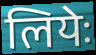
लियेः